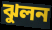
ঝুলন